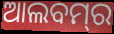
ଆଲବମ୍‌ର